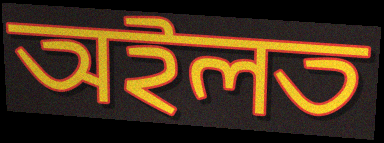
অইলত